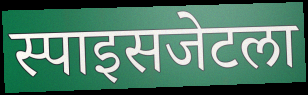
स्पाइसजेटला